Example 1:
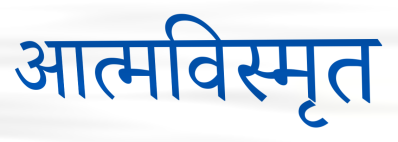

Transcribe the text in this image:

आत्मविस्मृत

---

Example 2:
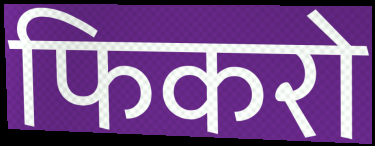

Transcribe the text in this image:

फिकरो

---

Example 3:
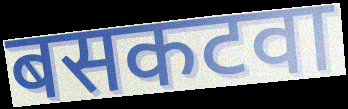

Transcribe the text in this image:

बसकटवा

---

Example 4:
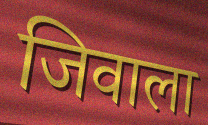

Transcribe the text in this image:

जिवाला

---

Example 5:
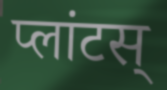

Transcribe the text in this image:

प्लांटस्